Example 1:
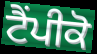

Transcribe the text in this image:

ਟੈਂਪੀਕੋ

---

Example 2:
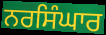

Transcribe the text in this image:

ਨਰਸਿੰਘਾਰ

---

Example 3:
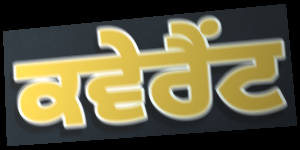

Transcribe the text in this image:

ਕਵੇਰੈਂਟ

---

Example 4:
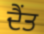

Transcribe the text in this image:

ਦੈਂਤ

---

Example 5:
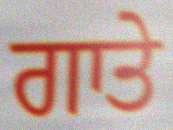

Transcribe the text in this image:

ਗਾਤੇ